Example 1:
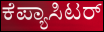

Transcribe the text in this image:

ಕೆಪ್ಯಾಸಿಟರ್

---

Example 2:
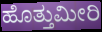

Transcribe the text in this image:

ಹೊತ್ತುಮೀರಿ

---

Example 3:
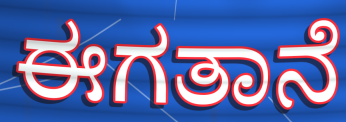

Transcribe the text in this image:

ಈಗತಾನೆ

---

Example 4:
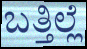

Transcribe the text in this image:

ಬತ್ತಿಲ್ಲೆ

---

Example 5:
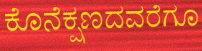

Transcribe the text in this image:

ಕೊನೆಕ್ಷಣದವರೆಗೂ